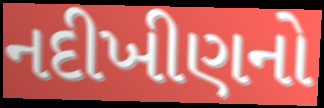
નદીખીણનો